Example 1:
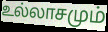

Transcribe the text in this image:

உல்லாசமும்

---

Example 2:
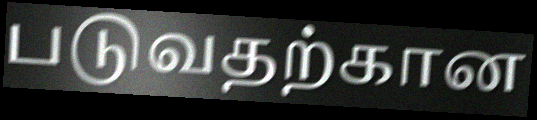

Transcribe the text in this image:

படுவதற்கான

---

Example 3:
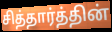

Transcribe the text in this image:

சித்தார்த்தின்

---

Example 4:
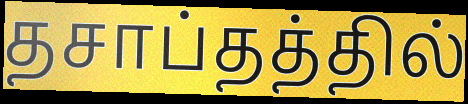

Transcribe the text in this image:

தசாப்தத்தில்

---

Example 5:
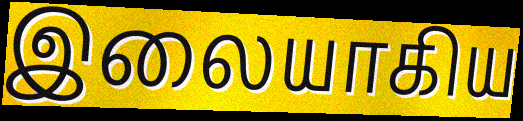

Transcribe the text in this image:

இலையாகிய